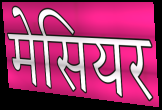
मेसियर